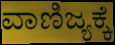
ವಾಣಿಜ್ಯಕ್ಕೆ